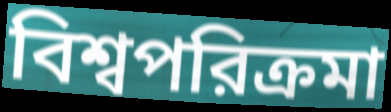
বিশ্বপরিক্রমা